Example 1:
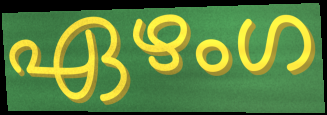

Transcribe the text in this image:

ഏഴംഗ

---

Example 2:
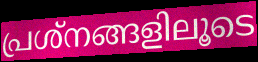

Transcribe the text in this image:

പ്രശ്നങ്ങളിലൂടെ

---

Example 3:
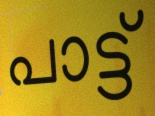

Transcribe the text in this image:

പാട്ട്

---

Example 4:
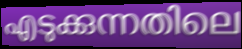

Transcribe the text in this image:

എടുക്കുന്നതിലെ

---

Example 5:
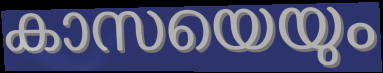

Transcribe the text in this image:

കാസയെയും